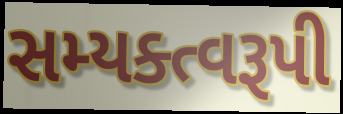
સમ્યક્ત્વરૂપી